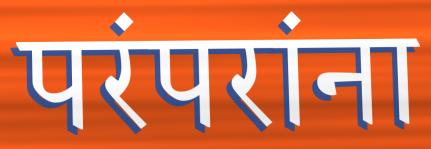
परंपरांना